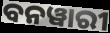
ବନୱାରୀ